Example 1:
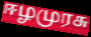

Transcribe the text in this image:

ஈழமுரசு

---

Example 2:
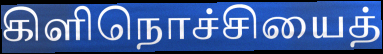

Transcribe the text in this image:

கிளிநொச்சியைத்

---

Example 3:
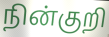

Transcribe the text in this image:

நின்குறி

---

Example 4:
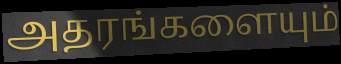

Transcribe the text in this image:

அதரங்களையும்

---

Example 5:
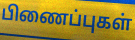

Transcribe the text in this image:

பிணைப்புகள்